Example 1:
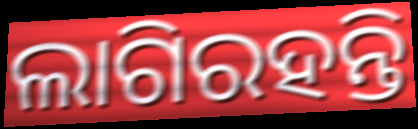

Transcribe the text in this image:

ଲାଗିରହନ୍ତି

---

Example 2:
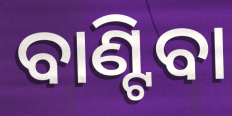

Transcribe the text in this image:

ବାଣ୍ଟିବା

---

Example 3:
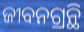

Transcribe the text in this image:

ଜୀବନଗ୍ରନ୍ଥି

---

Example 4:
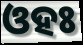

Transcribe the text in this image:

ଓହଃ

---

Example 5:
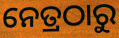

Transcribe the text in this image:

ନେତ୍ରଠାରୁ